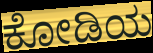
ಕೋಡಿಯ